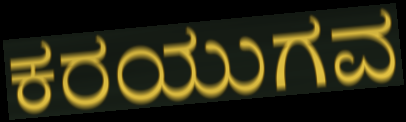
ಕರಯುಗವ